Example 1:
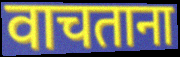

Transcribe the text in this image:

वाचताना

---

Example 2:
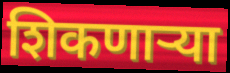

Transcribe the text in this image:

शिकणार्‍या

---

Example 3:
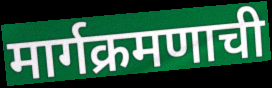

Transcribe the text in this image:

मार्गक्रमणाची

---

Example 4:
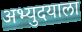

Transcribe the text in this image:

अभ्युदयाला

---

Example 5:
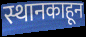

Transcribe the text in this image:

स्थानकाहून